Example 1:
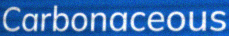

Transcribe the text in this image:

Carbonaceous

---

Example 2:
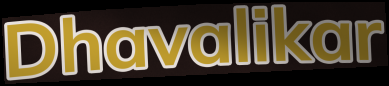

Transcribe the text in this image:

Dhavalikar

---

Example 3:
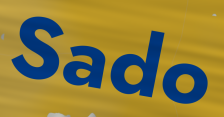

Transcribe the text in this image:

Sado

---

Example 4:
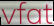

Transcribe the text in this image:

vfat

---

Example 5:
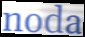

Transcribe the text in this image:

noda